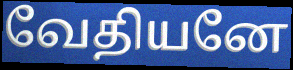
வேதியனே